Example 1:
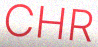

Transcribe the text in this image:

CHR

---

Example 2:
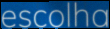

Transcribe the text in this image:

escolha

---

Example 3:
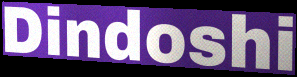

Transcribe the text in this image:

Dindoshi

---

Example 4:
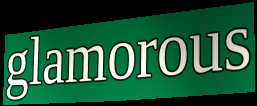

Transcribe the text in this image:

glamorous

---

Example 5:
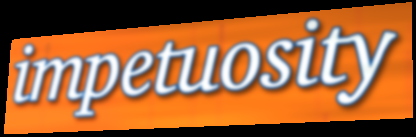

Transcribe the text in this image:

impetuosity